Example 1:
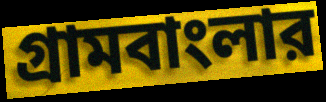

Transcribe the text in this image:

গ্রামবাংলার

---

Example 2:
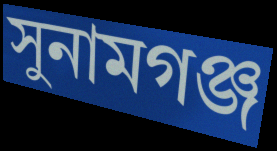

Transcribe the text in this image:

সুনামগঞ্জ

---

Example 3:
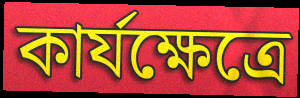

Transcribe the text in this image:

কার্যক্ষেত্রে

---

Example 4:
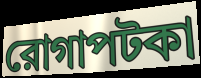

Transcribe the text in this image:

রোগাপটকা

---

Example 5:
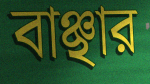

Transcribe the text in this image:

বাঞ্ছার